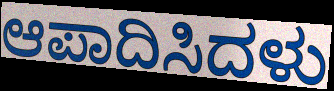
ಆಪಾದಿಸಿದಳು